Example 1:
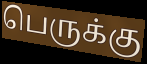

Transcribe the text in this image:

பெருக்கு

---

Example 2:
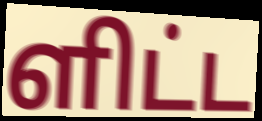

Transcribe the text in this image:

ளிட்ட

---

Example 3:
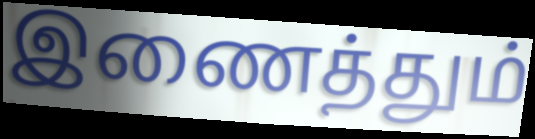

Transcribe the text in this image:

இணைத்தும்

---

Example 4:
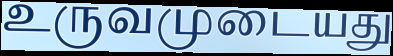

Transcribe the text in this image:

உருவமுடையது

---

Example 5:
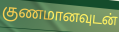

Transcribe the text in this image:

குணமானவுடன்